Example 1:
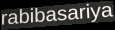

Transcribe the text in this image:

rabibasariya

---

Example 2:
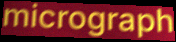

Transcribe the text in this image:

micrograph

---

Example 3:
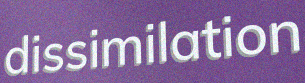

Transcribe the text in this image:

dissimilation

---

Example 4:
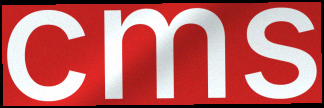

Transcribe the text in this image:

cms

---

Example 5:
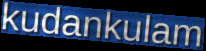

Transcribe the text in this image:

kudankulam